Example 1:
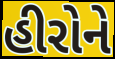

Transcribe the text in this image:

હીરોને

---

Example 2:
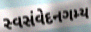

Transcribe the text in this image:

સ્વસંવેદનગમ્ય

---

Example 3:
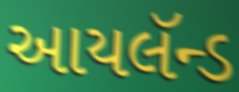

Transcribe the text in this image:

આયલૅન્ડ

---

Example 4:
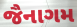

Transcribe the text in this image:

જૈનાગમ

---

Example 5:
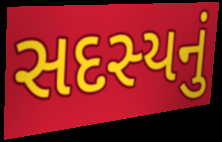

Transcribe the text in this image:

સદસ્યનું